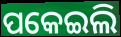
ପକେଇଲି